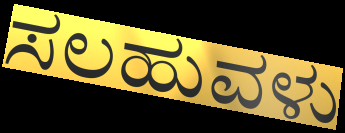
ಸಲಹುವಳು